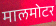
मालमोटर